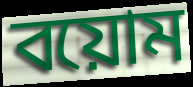
বয়োম